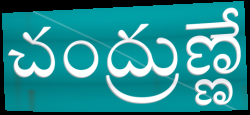
చంద్రుణ్ణే